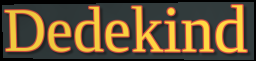
Dedekind